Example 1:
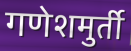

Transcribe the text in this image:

गणेशमुर्ती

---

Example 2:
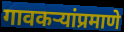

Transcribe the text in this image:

गावकऱ्यांप्रमाणे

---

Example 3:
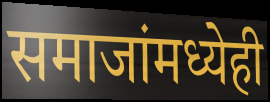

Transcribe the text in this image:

समाजांमध्येही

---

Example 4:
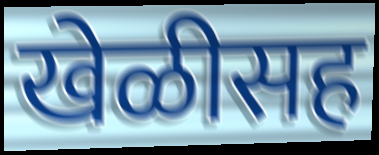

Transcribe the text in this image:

खेळीसह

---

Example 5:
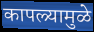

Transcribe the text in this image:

कापल्यामुळे